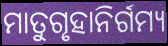
ମାତୁଗୃହାନିର୍ଗମ୍ୟ